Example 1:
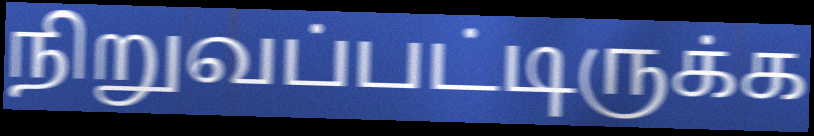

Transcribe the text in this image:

நிறுவப்பட்டிருக்க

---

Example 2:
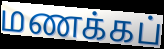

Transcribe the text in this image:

மணக்கப்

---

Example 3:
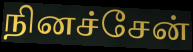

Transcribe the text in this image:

நினச்சேன்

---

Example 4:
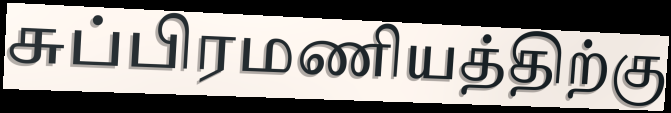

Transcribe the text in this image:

சுப்பிரமணியத்திற்கு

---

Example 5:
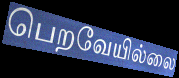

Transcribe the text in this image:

பெறவேயில்லை